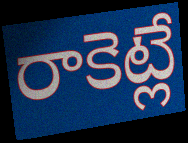
రాకెట్లే